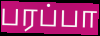
பரப்பா